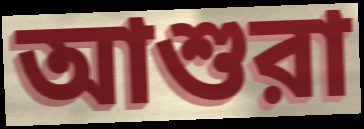
আশুরা